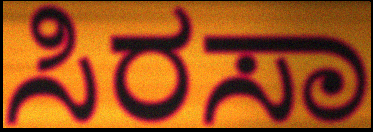
ಸಿರಸಾ